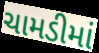
ચામડીમાં